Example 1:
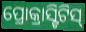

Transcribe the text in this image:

ପ୍ରୋକ୍ରାସ୍ଟିଟିସ୍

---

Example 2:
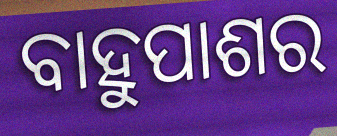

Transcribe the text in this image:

ବାହୁପାଶର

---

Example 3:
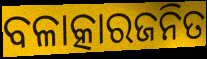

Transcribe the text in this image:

ବଳାତ୍କାରଜନିତ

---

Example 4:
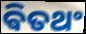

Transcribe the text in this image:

ଵିତଥଂ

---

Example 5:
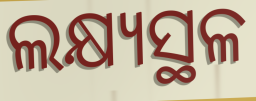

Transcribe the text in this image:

ଲକ୍ଷ୍ୟସ୍ଥଳ